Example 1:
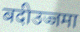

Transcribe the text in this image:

बदीउज्जमा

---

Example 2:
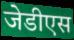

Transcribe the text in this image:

जेडीएस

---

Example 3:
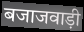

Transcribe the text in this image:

बजाजवाड़ी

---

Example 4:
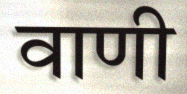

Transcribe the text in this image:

वाणी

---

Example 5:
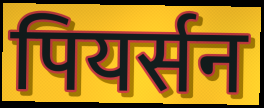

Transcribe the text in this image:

पियर्सन